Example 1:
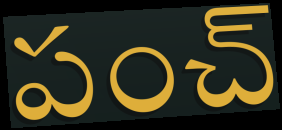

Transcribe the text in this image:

పంచ్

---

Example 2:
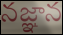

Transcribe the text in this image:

నజ్ఞాన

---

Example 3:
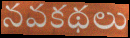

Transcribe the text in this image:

నవకథలు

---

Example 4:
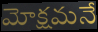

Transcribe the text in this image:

మోక్షమనే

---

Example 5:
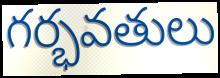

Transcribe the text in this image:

గర్భవతులు